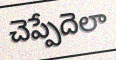
చెప్పేదెలా